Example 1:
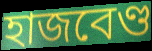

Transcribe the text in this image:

হাজবেণ্ড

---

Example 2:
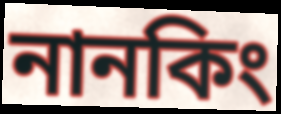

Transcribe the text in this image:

নানকিং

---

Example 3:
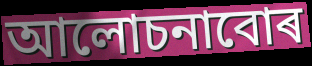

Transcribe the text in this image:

আলোচনাবোৰ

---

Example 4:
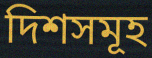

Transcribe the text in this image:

দিশসমূহ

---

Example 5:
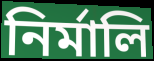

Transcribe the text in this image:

নিৰ্মালি